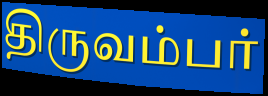
திருவம்பர்